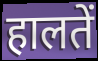
हालतें